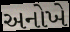
અનોખે